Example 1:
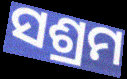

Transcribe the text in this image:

ସଶ୍ରମ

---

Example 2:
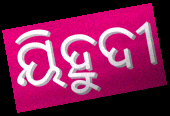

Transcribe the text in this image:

ୟିହୁଦୀ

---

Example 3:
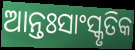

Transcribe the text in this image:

ଆନ୍ତଃସାଂସ୍କୃତିକ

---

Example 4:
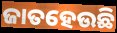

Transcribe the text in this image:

ଜାତହେଉଛି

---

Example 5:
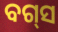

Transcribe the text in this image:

ବଗ୍‌ସ